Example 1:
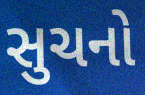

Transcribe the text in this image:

સુચનો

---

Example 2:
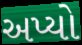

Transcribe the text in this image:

અપ્યો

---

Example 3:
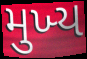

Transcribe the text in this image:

મુખ્‍ય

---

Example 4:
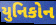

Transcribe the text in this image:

યુનિકોન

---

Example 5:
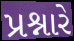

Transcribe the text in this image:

પ્રશ્નારે